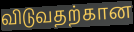
விடுவதற்கான